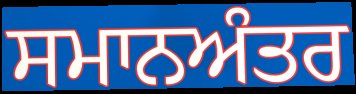
ਸਮਾਨਅੰਤਰ